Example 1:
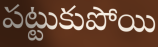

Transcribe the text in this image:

పట్టుకుపోయి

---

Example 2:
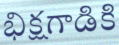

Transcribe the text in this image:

భిక్షగాడికి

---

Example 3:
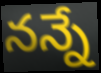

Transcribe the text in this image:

నన్నే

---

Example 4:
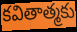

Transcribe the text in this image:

కవితాత్మకు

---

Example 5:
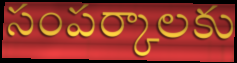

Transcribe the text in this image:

సంపర్కాలకు